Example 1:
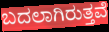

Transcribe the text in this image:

ಬದಲಾಗಿರುತ್ತವೆ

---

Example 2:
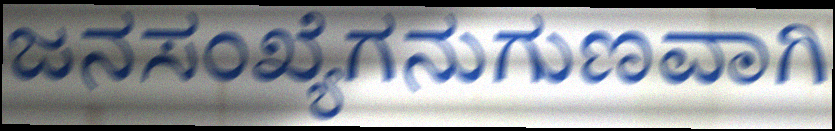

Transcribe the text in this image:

ಜನಸಂಖ್ಯೆಗನುಗುಣವಾಗಿ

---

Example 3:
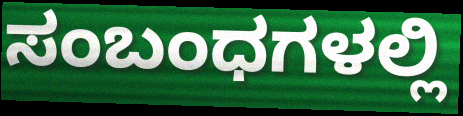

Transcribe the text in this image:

ಸಂಬಂಧಗಳಲ್ಲಿ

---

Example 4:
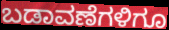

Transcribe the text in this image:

ಬಡಾವಣೆಗಳಿಗೂ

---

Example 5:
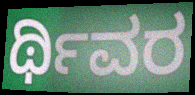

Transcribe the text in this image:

ರ್ಥಿವರ